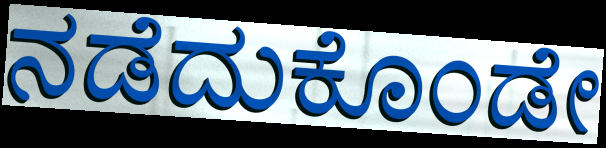
ನಡೆದುಕೊಂಡೇ